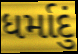
ધર્માદું